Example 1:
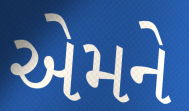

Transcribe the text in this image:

એમને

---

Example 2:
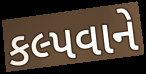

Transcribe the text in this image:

કલ્પવાને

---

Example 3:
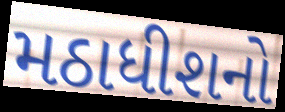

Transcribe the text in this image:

મઠાધીશનો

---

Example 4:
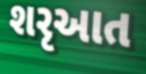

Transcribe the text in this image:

શરૃઆત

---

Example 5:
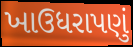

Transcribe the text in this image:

ખાઉધરાપણું